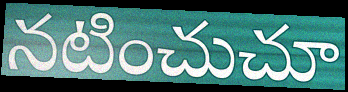
నటించుచూ